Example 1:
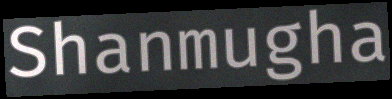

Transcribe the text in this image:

Shanmugha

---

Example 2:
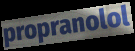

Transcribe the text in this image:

propranolol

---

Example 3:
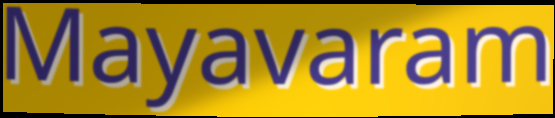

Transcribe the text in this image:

Mayavaram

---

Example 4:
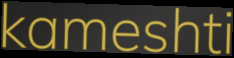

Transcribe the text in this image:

kameshti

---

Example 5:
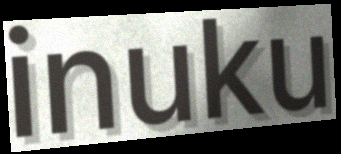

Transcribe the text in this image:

inuku